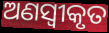
ଅଣସ୍ୱୀକୃତ